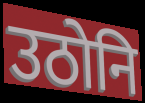
उठोनि